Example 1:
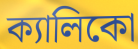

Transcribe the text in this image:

ক্যালিকো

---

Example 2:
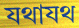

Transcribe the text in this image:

যথাযথ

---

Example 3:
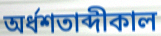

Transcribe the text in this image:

অর্ধশতাব্দীকাল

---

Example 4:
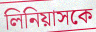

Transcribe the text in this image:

লিনিয়াসকে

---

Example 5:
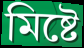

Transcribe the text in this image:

মিষ্টে